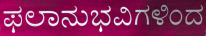
ಫಲಾನುಭವಿಗಳಿಂದ